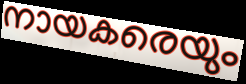
നായകരെയും